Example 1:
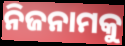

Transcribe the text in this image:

ନିଜନାମକୁ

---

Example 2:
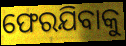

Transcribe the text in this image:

ଫେରଯିବାକୁ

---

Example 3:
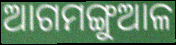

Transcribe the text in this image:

ଆଗମଙ୍ଗୁଆଳ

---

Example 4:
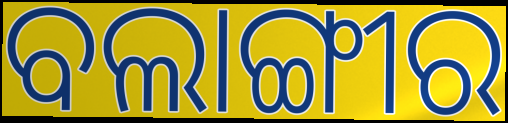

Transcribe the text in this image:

ବଲାଙ୍ଗୀର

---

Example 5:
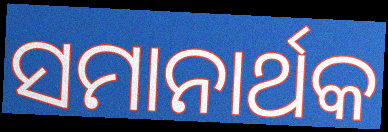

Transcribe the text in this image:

ସମାନାର୍ଥକ